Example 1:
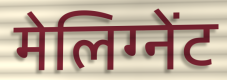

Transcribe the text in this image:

मेलिग्नेंट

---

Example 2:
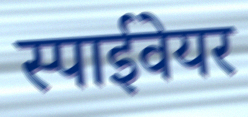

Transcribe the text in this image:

स्पाईवेयर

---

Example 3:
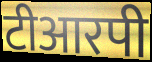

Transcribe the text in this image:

टीआरपी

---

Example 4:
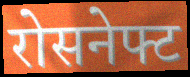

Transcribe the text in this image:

रोसनेफ्ट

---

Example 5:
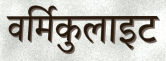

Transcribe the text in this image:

वर्मिकुलाइट